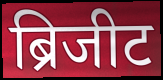
ब्रिजीट